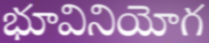
భూవినియోగ